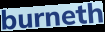
burneth